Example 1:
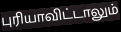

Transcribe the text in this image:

புரியாவிட்டாலும்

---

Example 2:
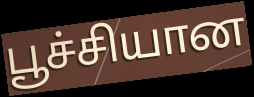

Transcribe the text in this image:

பூச்சியான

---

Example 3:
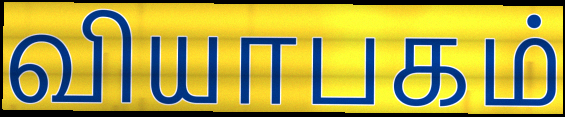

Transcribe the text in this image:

வியாபகம்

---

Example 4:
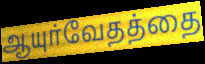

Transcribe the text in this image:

ஆயுர்வேதத்தை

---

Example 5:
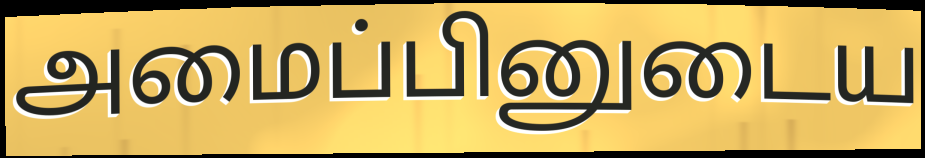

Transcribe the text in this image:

அமைப்பினுடைய